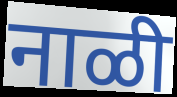
नाळी